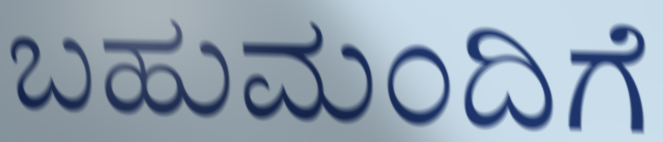
ಬಹುಮಂದಿಗೆ